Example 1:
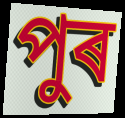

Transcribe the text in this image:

পুৰ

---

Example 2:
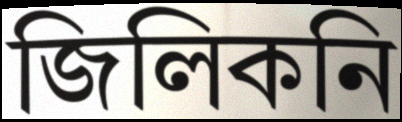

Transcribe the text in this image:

জিলিকনি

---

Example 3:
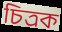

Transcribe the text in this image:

চিত্ৰক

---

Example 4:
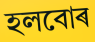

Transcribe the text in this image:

হলবোৰ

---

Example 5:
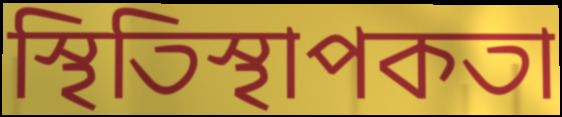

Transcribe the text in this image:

স্থিতিস্থাপকতা